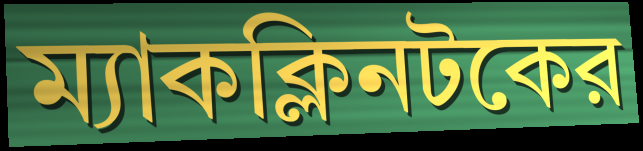
ম্যাকক্লিনটকের